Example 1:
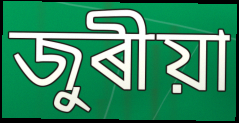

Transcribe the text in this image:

জুৰীয়া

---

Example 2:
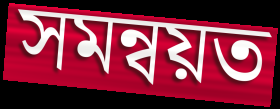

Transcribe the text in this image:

সমন্বয়ত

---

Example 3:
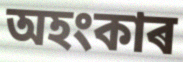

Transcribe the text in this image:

অহংকাৰ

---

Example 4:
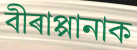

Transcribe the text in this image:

বীৰাপ্পানাক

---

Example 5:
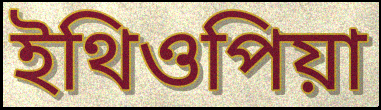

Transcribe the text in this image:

ইথিওপিয়া